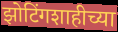
झोटिंगशाहीच्या